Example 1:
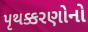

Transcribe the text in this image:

પૃથક્કરણોનો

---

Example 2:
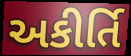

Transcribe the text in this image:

અકીર્તિ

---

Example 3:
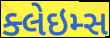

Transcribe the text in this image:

ક્લેઇમ્સ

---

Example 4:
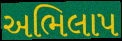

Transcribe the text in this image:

અભિલાપ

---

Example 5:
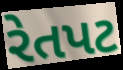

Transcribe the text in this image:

રેતપટ